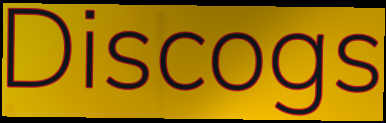
Discogs